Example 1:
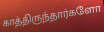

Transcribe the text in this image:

காத்திருந்தார்களோ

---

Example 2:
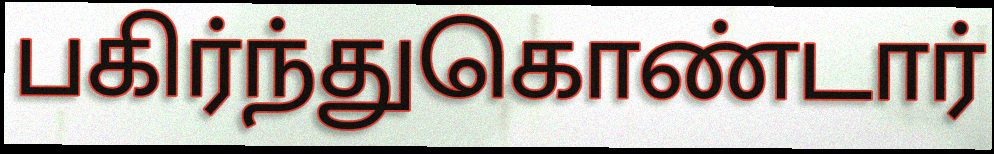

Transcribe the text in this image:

பகிர்ந்துகொண்டார்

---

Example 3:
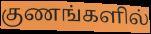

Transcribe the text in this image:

குணங்களில்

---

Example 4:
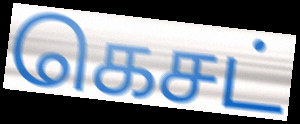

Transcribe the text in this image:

கெசட்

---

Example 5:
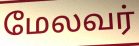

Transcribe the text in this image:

மேலவர்